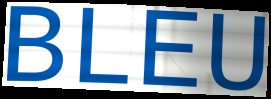
BLEU